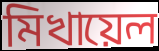
মিখায়েল